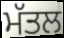
ਮੱਤਲ